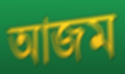
আজম